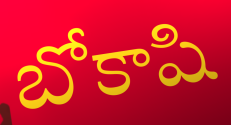
బోకాషి